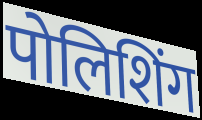
पोलिशिंग